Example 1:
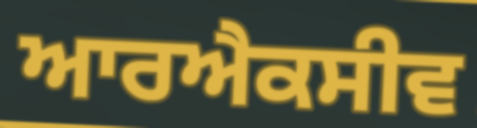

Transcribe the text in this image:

ਆਰਐਕਸੀਵ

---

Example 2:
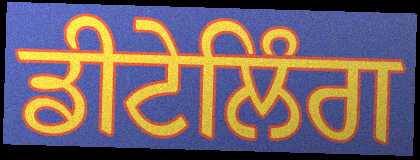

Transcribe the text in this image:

ਡੀਟੇਲਿੰਗ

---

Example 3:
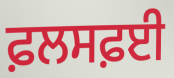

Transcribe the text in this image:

ਫ਼ਲਸਫ਼ਈ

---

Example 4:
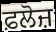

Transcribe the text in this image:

ਫ਼ਲੋਜ਼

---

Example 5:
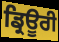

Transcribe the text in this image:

ਡ੍ਰਿਊਰੀ